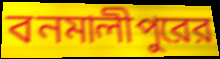
বনমালীপুরের